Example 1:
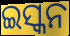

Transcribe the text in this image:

ଇସ୍କନ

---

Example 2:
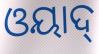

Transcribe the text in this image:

ଓୟାଦ୍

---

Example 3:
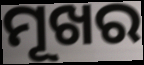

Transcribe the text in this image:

ମୂଖର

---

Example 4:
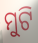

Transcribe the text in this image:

ମୁଟି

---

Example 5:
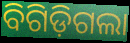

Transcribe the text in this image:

ବିଗିଡ଼ିଗଲା